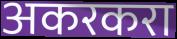
अकरकरा